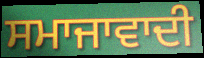
ਸਮਾਜਾਵਾਦੀ